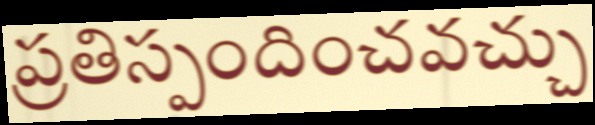
ప్రతిస్పందించవచ్చు